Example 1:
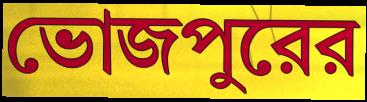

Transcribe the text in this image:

ভোজপুরের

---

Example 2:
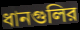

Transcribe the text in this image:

ধানগুলির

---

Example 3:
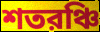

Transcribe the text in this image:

শতরঞ্চি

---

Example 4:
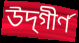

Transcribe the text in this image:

উদ্‌গীর্ণ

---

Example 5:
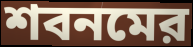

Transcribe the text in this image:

শবনমের